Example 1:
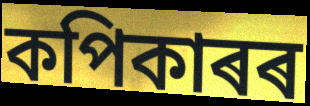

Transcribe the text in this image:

কপিকাৰৰ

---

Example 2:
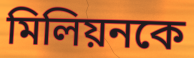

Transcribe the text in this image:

মিলিয়নকে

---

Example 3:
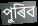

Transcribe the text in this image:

পুৰিব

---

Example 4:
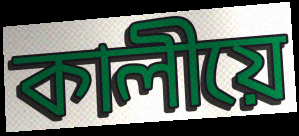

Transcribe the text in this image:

কালীয়ে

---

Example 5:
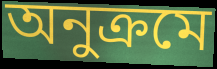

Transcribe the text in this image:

অনুক্ৰমে